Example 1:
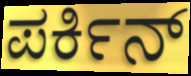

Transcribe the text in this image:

ಪರ್ಕಿನ್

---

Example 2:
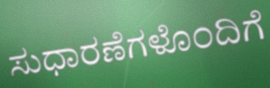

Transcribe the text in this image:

ಸುಧಾರಣೆಗಳೊಂದಿಗೆ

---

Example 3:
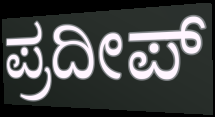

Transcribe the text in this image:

ಪ್ರದೀಪ್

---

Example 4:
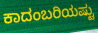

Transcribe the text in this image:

ಕಾದಂಬರಿಯಷ್ಟು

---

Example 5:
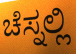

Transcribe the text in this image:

ಚೆಸ್ನಲ್ಲಿ